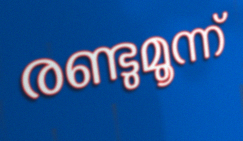
രണ്ടുമൂന്ന്